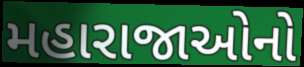
મહારાજાઓનો